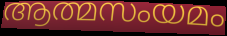
ആത്മസംയമം